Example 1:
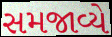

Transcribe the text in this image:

સમજાવ્યે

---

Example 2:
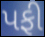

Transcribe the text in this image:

પફી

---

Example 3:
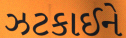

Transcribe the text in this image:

ઝટકાઈને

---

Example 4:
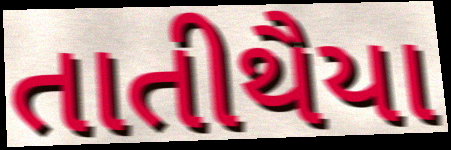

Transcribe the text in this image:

તાતીથૈયા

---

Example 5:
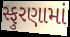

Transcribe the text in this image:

સ્ફુરણામાં